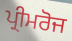
ਪ੍ਰੀਮਰੋਜ